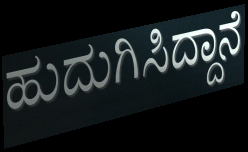
ಹುದುಗಿಸಿದ್ದಾನೆ